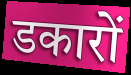
डकारों